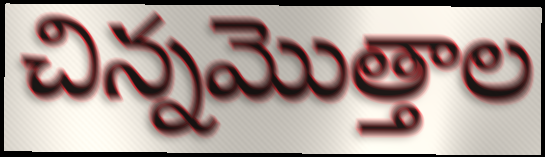
చిన్నమొత్తాల